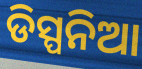
ଡିସ୍ପନିଆ